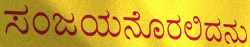
ಸಂಜಯನೊರಲಿದನು